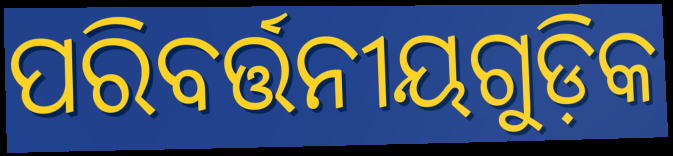
ପରିବର୍ତ୍ତନୀୟଗୁଡ଼ିକ